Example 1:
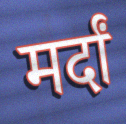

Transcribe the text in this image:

मर्दां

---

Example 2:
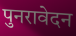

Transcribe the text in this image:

पुनरावेदन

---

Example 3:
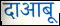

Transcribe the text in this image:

दाआबू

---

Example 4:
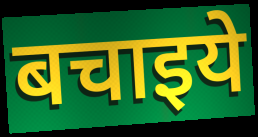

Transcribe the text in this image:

बचाइये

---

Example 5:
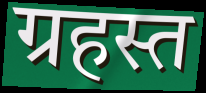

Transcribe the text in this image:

ग्रहस्त